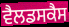
ਵੈਲਡਸਕੈਸ